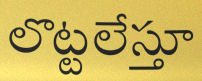
లొట్టలేస్తూ